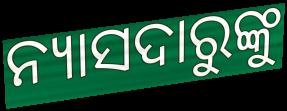
ନ୍ୟାସଦାରୁଙ୍କୁ